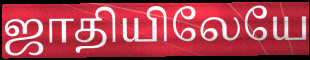
ஜாதியிலேயே